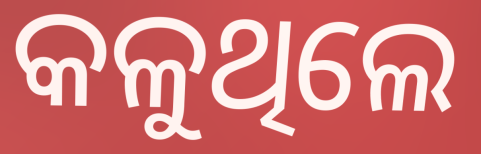
କଳୁଥିଲେ